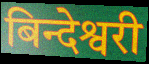
बिन्देश्वरी